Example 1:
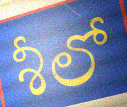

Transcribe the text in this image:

శీలో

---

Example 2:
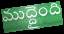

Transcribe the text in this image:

ముద్దైంది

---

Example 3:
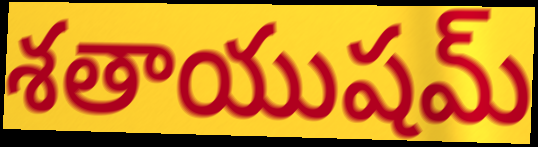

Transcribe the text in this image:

శతాయుషమ్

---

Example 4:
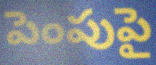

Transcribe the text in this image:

పెంపుపై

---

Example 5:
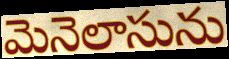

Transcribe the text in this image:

మెనెలాసును